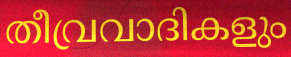
തീവ്രവാദികളും